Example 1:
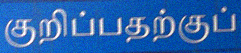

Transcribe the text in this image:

குறிப்பதற்குப்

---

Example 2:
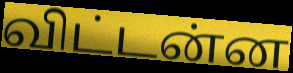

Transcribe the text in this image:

விட்டன்ன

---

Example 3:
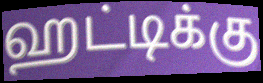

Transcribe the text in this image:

ஹட்டிக்கு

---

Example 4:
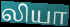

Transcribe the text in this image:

லியா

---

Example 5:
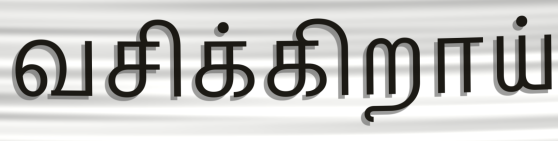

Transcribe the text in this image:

வசிக்கிறாய்